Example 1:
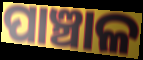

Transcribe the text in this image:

ପାଞ୍ଚାଳ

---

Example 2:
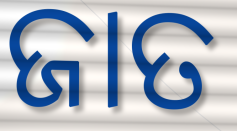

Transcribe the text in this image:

ଜାତ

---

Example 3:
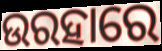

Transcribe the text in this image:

ଉରହାରେ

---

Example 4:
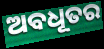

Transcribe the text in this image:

ଅବଧୂତର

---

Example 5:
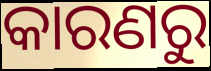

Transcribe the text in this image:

କାରଣରୁ